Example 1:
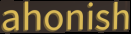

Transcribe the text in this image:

ahonish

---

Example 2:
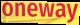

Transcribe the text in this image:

oneway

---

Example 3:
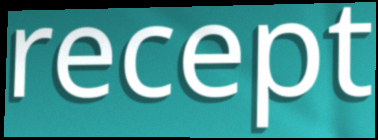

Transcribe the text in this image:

recept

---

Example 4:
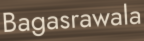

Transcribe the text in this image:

Bagasrawala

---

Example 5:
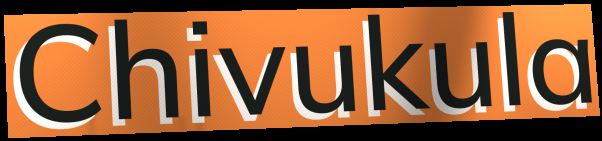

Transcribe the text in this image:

Chivukula